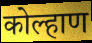
कोल्हाण